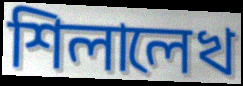
শিলালেখ